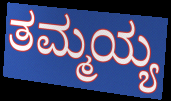
ತಮ್ಮಯ್ಯ